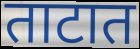
ताटात